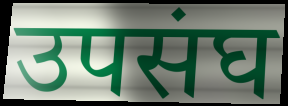
उपसंघ